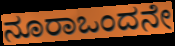
ನೂರಾಒಂದನೇ